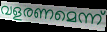
വളരണമെന്ന്